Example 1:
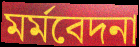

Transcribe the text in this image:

মর্মবেদনা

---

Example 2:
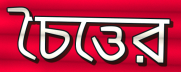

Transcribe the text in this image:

চৈত্তের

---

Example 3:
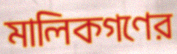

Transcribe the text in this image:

মালিকগণের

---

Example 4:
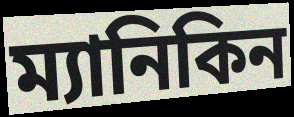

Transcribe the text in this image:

ম্যানিকিন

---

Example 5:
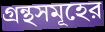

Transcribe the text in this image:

গ্রন্থসমূহের